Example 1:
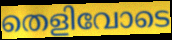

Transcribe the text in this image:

തെളിവോടെ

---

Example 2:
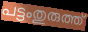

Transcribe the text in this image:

പട്ടംതുരുത്ത്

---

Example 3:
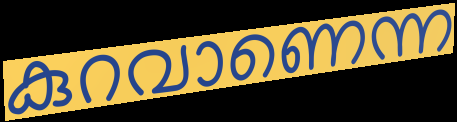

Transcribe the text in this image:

കുറവാണെന്ന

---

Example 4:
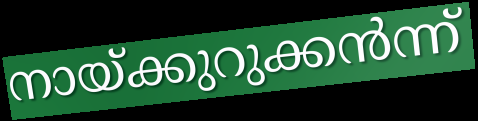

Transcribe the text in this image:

നായ്ക്കുറുക്കൻന്ന്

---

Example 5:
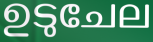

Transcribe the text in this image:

ഉടുചേല